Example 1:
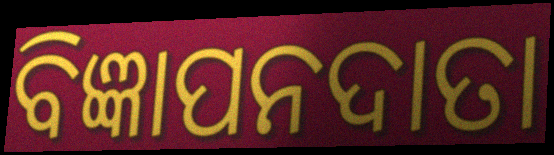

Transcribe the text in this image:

ବିଜ୍ଞାପନଦାତା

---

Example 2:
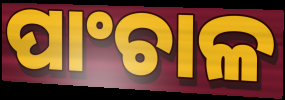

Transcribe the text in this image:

ପାଂଚାଳ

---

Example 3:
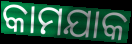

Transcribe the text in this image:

କାମଯାକ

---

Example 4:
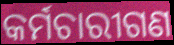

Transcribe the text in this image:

କର୍ମଚାରୀଗଣ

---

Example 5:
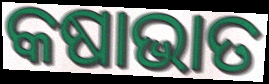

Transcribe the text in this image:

କଷାଭାତ